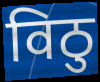
विठु